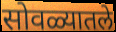
सोवळ्यातले